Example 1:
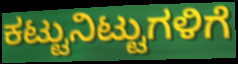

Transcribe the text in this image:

ಕಟ್ಟುನಿಟ್ಟುಗಳಿಗೆ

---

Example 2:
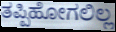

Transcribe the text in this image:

ತಪ್ಪಿಹೋಗಲಿಲ್ಲ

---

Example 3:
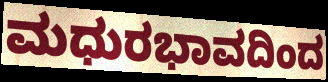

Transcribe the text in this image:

ಮಧುರಭಾವದಿಂದ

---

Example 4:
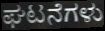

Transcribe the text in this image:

ಘಟನೆಗಳು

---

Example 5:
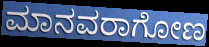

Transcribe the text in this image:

ಮಾನವರಾಗೋಣ